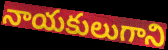
నాయకులుగాని